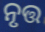
ନୃତ୍ତ